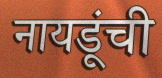
नायडूंची